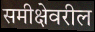
समीक्षेवरील